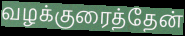
வழக்குரைத்தேன்